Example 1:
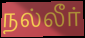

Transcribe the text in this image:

நல்லீர்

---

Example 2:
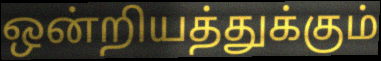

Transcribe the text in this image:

ஒன்றியத்துக்கும்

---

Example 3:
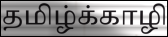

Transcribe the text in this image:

தமிழ்க்காழி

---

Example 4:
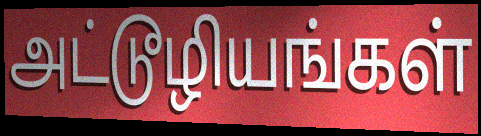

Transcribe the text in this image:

அட்டூழியங்கள்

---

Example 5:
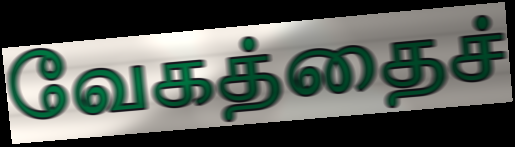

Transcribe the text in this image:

வேகத்தைச்